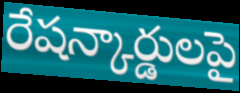
రేషన్కార్డులపై